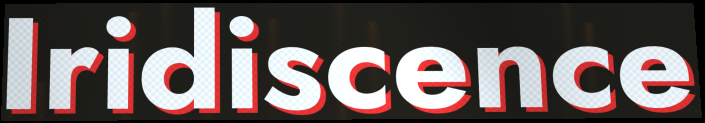
Iridiscence